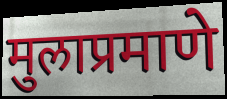
मुलाप्रमाणे